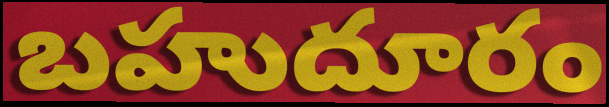
బహుదూరం